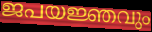
ജപയജ്ഞവും